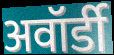
अवॉर्डी